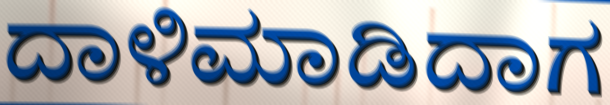
ದಾಳಿಮಾಡಿದಾಗ